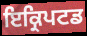
ਇਕ੍ਰਿਪਟਡ